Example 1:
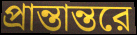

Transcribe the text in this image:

প্রান্তান্তরে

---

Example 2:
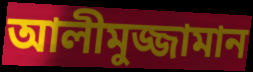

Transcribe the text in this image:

আলীমুজ্জামান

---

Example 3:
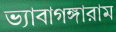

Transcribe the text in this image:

ভ্যাবাগঙ্গারাম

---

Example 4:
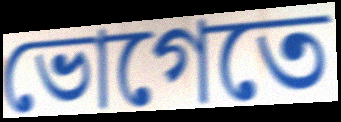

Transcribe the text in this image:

ভোগেতে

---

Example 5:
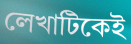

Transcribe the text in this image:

লেখাটিকেই